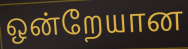
ஒன்றேயான